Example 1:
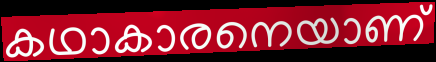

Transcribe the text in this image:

കഥാകാരനെയാണ്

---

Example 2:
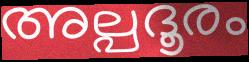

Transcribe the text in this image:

അല്പദൂരം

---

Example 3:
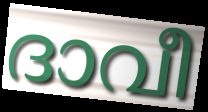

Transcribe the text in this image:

ദാവീ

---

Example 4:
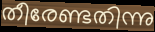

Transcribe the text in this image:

തീരേണ്ടതിന്നു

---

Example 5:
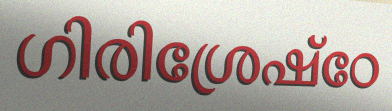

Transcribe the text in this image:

ഗിരിശ്രേഷ്ഠേ